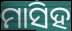
ମାସିହ